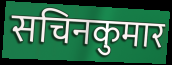
सचिनकुमार